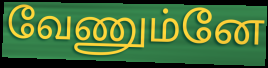
வேணும்னே